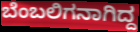
ಬೆಂಬಲಿಗನಾಗಿದ್ದ